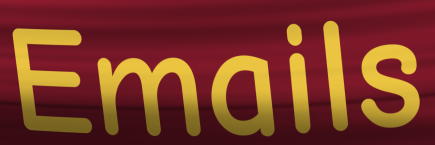
Emails